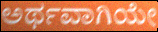
ಅರ್ಥವಾಗಿಯೇ